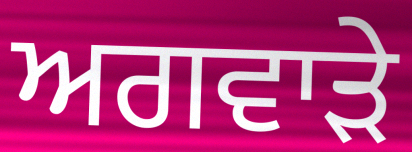
ਅਗਵਾੜੇ